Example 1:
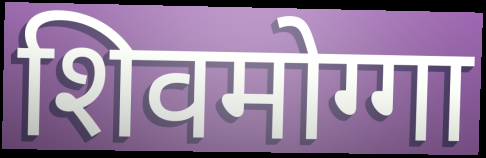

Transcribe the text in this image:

शिवमोग्गा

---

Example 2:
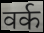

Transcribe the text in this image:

वर्क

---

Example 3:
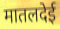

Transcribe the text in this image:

मातलदेई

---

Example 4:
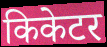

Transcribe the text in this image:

किकेटर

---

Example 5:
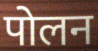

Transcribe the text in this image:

पोलन